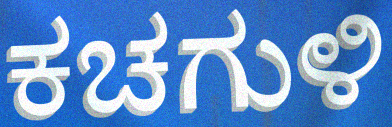
ಕಚಗುಳಿ